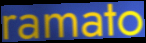
ramato